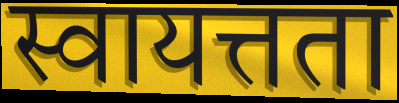
स्वायत्तता